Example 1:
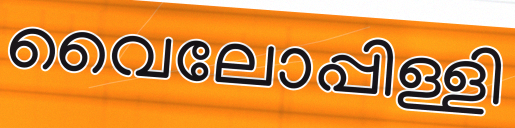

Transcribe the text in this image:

വൈലോപ്പിള്ളി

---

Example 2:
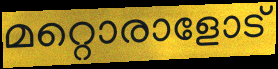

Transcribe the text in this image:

മറ്റൊരാളോട്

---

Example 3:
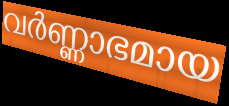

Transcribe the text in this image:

വർണ്ണാഭമായ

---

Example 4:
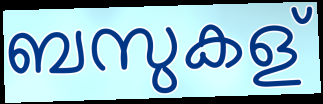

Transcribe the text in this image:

ബസുകള്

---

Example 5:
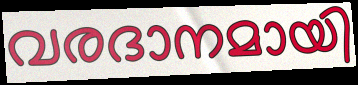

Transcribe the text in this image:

വരദാനമായി